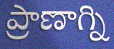
ప్రాణాగ్ని